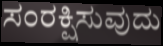
ಸಂರಕ್ಷಿಸುವುದು